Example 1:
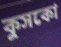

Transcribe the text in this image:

কুসকো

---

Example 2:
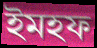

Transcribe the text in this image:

ইমহফ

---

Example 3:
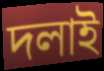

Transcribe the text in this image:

দলাই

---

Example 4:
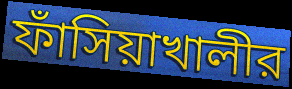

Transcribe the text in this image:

ফাঁসিয়াখালীর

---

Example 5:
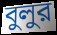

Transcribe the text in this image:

বুলুর